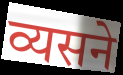
व्यसने